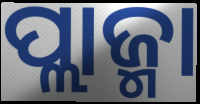
ପ୍ଲାଜ୍ମା